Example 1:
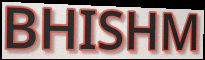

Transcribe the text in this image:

BHISHM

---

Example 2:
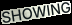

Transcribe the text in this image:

SHOWING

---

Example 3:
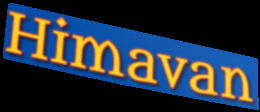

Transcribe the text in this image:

Himavan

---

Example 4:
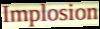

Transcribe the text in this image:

Implosion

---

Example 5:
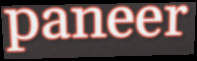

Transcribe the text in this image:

paneer